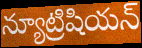
న్యూట్రిషియన్